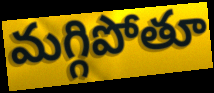
మగ్గిపోతూ